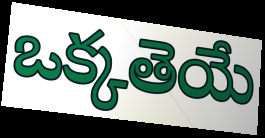
ఒక్కతెయే